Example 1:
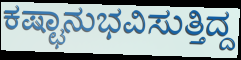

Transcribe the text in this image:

ಕಷ್ಟಾನುಭವಿಸುತ್ತಿದ್ದ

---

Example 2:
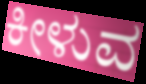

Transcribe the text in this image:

ಕೀಳುವ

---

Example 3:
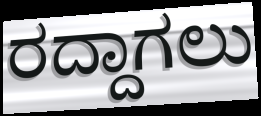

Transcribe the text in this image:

ರದ್ದಾಗಲು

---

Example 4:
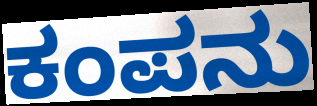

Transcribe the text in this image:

ಕಂಪನು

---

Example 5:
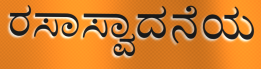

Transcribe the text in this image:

ರಸಾಸ್ವಾದನೆಯ